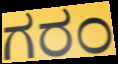
ಗರಂ